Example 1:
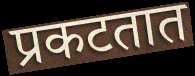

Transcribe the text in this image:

प्रकटतात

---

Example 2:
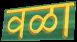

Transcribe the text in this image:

वळा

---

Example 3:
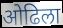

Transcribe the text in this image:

ओढिला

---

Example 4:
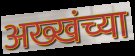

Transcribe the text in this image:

अख्खंच्या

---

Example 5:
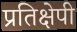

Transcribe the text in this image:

प्रतिक्षेपी